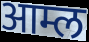
आम्‍ल